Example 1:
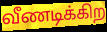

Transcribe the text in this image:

வீணடிக்கிற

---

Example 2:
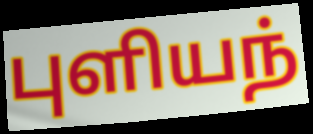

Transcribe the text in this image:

புளியந்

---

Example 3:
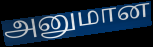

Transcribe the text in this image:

அனுமான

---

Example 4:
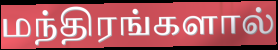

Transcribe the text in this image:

மந்திரங்களால்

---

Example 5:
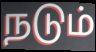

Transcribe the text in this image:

நடும்